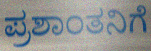
ಪ್ರಶಾಂತನಿಗೆ